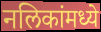
नलिकांमध्ये